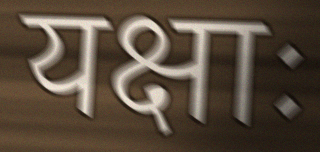
यक्षाः